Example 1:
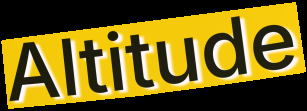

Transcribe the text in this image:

Altitude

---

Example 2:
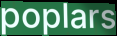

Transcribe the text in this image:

poplars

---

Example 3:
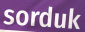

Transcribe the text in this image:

sorduk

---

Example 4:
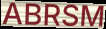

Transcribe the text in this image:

ABRSM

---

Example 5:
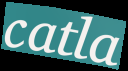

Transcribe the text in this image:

catla